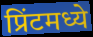
प्रिंटमध्ये